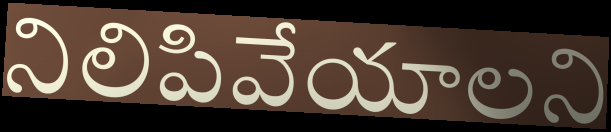
నిలిపివేయాలని